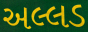
અલ્લડ